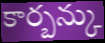
కార్బన్కు